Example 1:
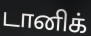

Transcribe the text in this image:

டானிக்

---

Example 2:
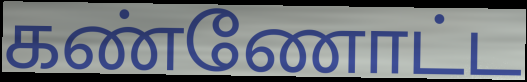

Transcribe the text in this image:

கண்ணோட்ட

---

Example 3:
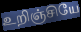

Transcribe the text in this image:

உறிஞ்சியே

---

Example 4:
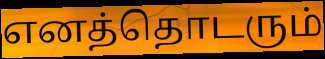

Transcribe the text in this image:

எனத்தொடரும்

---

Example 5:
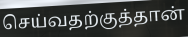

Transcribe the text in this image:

செய்வதற்குத்தான்